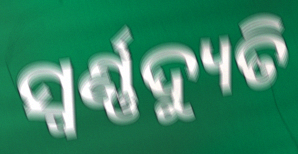
ସ୍ୱର୍ଣ୍ଣଦ୍ୟୁତି